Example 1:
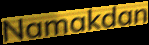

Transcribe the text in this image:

Namakdan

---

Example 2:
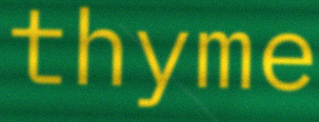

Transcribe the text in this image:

thyme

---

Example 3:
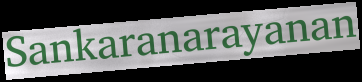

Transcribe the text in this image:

Sankaranarayanan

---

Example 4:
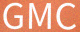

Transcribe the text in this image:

GMC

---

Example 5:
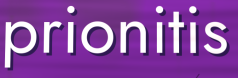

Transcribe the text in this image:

prionitis